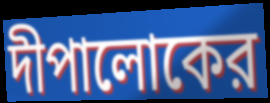
দীপালোকের